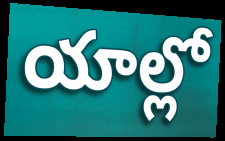
యాల్లో